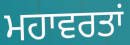
ਮਹਾਵਰਤਾਂ